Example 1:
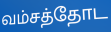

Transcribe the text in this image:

வம்சத்தோட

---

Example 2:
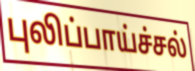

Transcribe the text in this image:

புலிப்பாய்ச்சல்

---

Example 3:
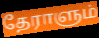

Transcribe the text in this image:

தேராளும்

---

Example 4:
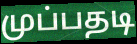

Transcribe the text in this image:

முப்பதடி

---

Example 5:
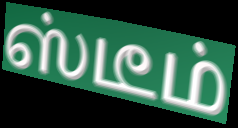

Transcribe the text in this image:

ஸ்டீம்